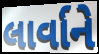
લાર્વાને